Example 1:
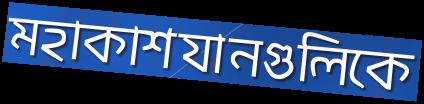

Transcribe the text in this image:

মহাকাশযানগুলিকে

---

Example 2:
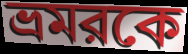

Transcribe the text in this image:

ভ্রমরকে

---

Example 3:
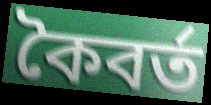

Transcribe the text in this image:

কৈবর্ত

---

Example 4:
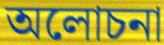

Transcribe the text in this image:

অলোচনা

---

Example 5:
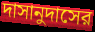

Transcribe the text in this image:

দাসানুদাসের